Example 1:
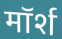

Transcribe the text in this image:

मॉर्श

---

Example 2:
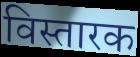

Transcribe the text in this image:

विस्तारक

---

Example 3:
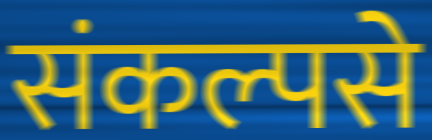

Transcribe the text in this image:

संकल्पसे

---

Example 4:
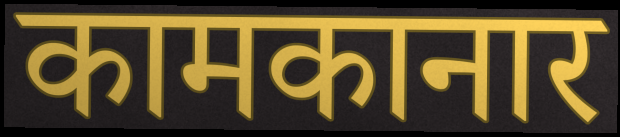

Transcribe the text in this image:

कामकानार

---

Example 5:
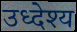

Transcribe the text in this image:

उध्देश्य